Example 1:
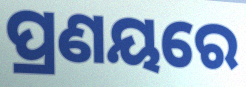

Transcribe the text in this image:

ପ୍ରଣୟରେ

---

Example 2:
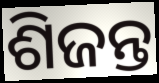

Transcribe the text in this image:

ଶିଜନ୍ତ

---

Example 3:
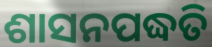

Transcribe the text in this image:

ଶାସନପଦ୍ଧତି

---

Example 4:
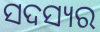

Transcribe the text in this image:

ସଦସ୍ୟର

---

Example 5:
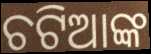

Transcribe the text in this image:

ଚଟିଆଙ୍କ